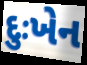
દુઃખેન